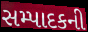
સમ્પાદકની